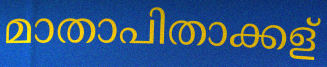
മാതാപിതാക്കള്